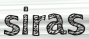
siras